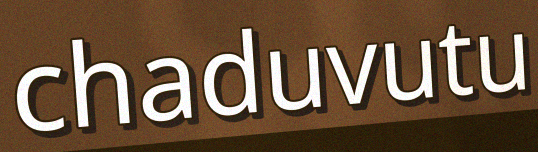
chaduvutu